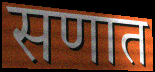
सणात